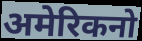
अमेरिकनो